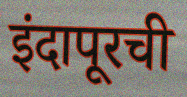
इंदापूरची